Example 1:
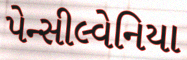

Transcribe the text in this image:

પેન્સીલ્વેનિયા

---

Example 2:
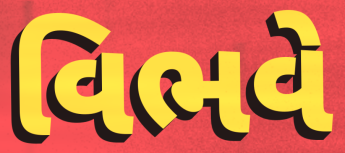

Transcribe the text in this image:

વિભવે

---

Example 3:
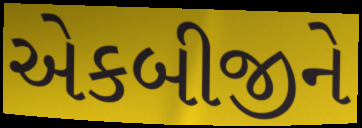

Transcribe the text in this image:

એકબીજીને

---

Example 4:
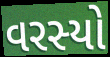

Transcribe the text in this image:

વરસ્યો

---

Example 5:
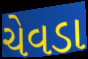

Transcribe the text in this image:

ચેવડા